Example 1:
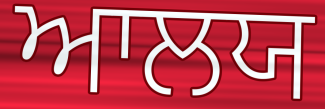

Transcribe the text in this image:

ਆਲਯ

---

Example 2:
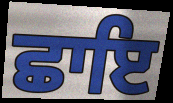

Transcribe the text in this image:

ਛਾਇ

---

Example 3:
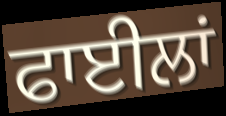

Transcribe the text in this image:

ਫਾਈਲਾਂ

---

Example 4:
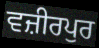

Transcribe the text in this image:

ਵਜ਼ੀਰਪੁਰ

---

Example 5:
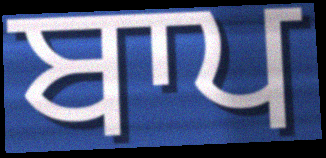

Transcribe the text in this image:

ਬਾਪ